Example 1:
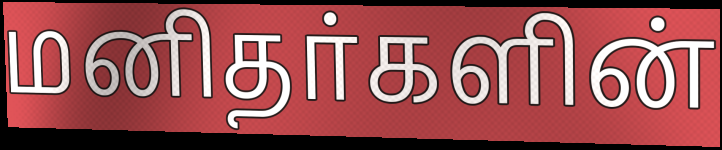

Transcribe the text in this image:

மனிதர்களின்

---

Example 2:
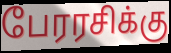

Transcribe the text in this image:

பேரரசிக்கு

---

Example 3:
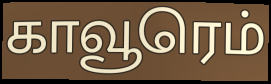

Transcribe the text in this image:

காவூரெம்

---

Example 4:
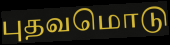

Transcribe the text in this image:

புதவமொடு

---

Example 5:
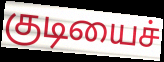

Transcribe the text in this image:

குடியைச்